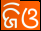
ଜିଓ